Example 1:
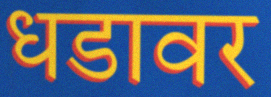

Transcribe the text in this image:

धडावर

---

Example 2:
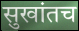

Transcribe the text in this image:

सुखांतच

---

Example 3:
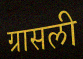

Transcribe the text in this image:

ग्रासली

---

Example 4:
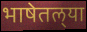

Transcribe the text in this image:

भाषेतल्या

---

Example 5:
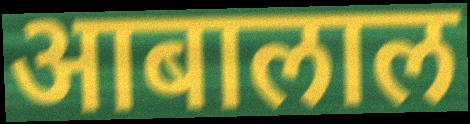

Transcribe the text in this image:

आबालाल